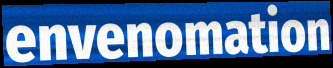
envenomation